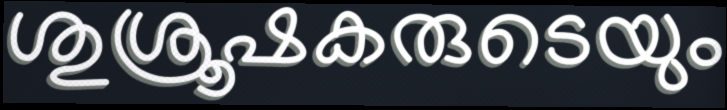
ശുശ്രൂഷകരുടെയും